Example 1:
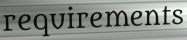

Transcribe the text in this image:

requirements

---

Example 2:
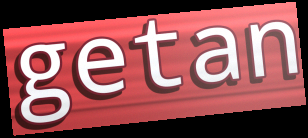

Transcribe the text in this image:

getan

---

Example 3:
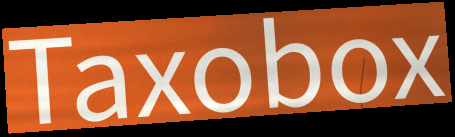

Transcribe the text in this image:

Taxobox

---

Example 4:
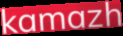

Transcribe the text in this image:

kamazh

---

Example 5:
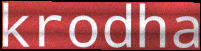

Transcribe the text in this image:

krodha